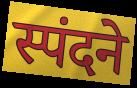
स्पंदने